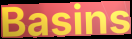
Basins